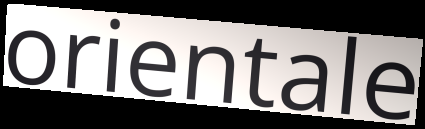
orientale